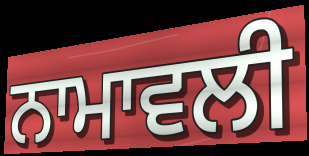
ਨਾਮਾਵਲੀ